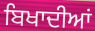
ਬਿਖਾਦੀਆਂ